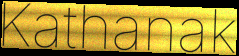
Kathanak